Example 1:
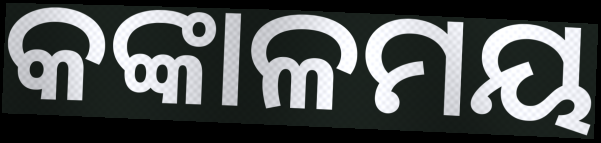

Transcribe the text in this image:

କଙ୍କାଳମୟ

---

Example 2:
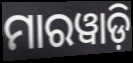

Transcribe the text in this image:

ମାରୱାଡ଼ି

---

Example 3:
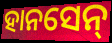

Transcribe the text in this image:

ହାନସେନ୍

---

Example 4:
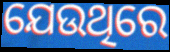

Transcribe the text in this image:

ଯେଉଥିରେ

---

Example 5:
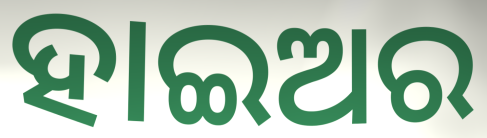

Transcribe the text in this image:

ହାଇଅର